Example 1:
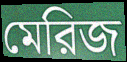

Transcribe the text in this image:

মেরিজ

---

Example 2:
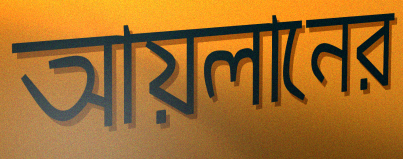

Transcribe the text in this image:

আয়লানের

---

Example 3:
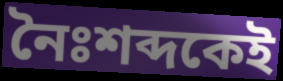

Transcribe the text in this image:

নৈঃশব্দকেই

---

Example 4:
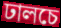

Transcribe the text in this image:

ঢালচে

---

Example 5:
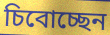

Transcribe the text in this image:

চিবোচ্ছেন